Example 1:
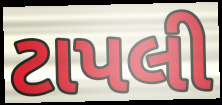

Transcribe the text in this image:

ટાપલી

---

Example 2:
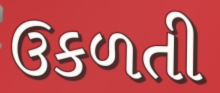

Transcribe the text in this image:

ઉકળતી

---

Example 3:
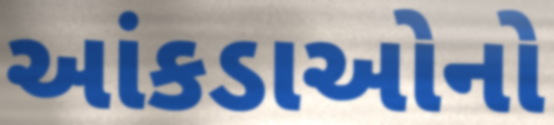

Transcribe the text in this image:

આંકડાઓનો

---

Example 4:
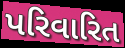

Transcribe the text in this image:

પરિવારિત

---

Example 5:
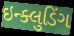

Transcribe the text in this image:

ઇન્ક્લુડિંગ